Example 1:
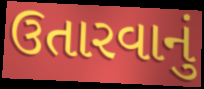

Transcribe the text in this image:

ઉતારવાનું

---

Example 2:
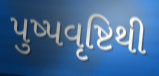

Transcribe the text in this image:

પુષ્પવૃષ્ટિથી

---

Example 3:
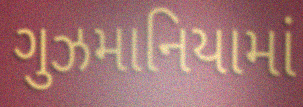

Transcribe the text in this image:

ગુઝમાનિયામાં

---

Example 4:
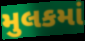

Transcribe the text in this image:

મુલકમાં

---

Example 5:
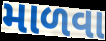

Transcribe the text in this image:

માળવા